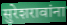
सुरेशरावांना